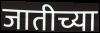
जातीच्या